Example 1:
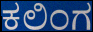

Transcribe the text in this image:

ಕಲಿಂಗ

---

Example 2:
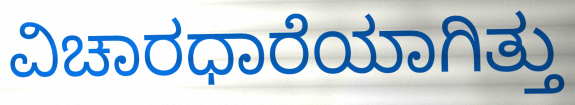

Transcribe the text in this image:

ವಿಚಾರಧಾರೆಯಾಗಿತ್ತು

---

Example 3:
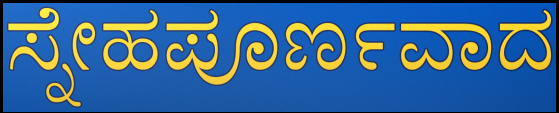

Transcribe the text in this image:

ಸ್ನೇಹಪೂರ್ಣವಾದ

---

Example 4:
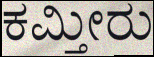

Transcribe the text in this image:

ಕಮ್ತೀರು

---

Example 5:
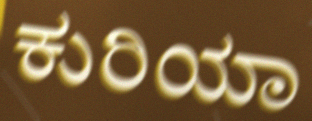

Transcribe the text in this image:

ಕುರಿಯಾ